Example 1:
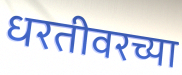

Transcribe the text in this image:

धरतीवरच्या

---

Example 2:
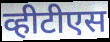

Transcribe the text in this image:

व्हीटीएस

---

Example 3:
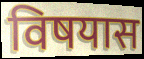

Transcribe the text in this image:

विषयास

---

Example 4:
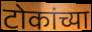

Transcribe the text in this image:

टोकांच्या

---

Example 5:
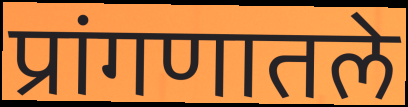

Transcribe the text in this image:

प्रांगणातले